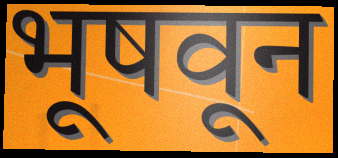
भूषवून